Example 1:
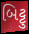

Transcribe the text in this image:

બિટ્ટુ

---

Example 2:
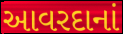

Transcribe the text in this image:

આવરદાનાં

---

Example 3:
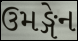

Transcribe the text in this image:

ઉમઙ્ગેન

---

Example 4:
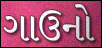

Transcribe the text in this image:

ગાઉનો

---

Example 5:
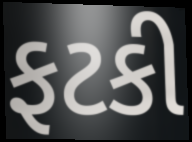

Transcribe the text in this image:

ફટકી